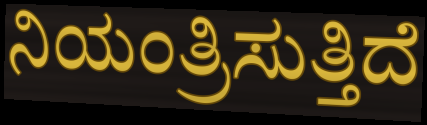
ನಿಯಂತ್ರಿಸುತ್ತಿದೆ